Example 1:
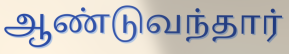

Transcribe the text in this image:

ஆண்டுவந்தார்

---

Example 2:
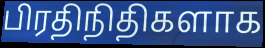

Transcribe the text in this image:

பிரதிநிதிகளாக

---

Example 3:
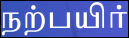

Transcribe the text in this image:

நற்பயிர்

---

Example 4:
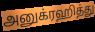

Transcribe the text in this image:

அனுக்ரஹித்து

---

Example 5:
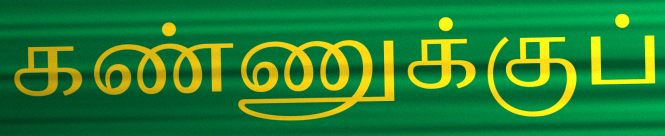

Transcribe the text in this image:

கண்ணுக்குப்